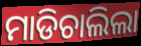
ମାଡିଚାଲିଲା